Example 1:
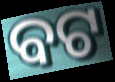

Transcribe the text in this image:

ବଟ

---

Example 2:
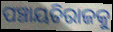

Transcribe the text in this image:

ପଞ୍ଚାୟତିରାଜକୁ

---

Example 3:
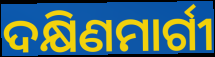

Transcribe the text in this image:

ଦକ୍ଷିଣମାର୍ଗୀ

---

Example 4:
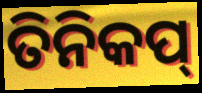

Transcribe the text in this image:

ତିନିକପ୍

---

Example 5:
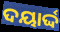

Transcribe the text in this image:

ଦୟାର୍ଦ୍ଦ